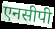
एनसीपी